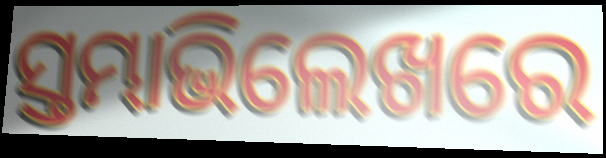
ସ୍ତମ୍ଭାଭିଲେଖରେ